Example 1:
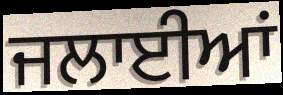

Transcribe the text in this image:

ਜਲਾਈਆਂ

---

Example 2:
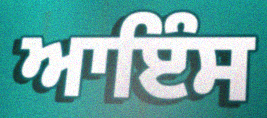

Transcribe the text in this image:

ਆਇੰਸ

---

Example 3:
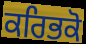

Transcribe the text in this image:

ਕਰਿਭਕੋ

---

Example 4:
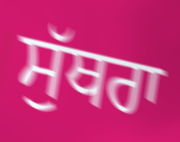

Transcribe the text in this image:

ਸੁੱਥਰਾ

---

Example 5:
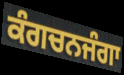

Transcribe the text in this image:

ਕੰਗਚਨਜੰਗਾ